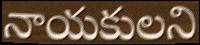
నాయకులని